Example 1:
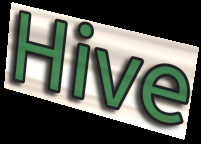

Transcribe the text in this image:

Hive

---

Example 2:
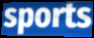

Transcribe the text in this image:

sports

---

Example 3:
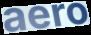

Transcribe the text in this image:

aero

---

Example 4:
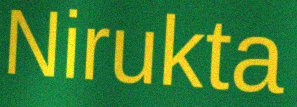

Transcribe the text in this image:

Nirukta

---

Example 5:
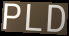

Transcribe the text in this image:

PLD